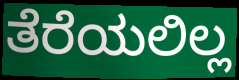
ತೆರೆಯಲಿಲ್ಲ